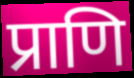
प्राणि